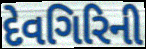
દેવગિરિની